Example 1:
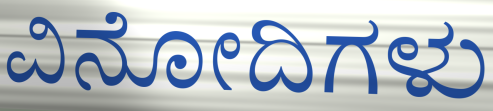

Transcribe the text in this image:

ವಿನೋದಿಗಳು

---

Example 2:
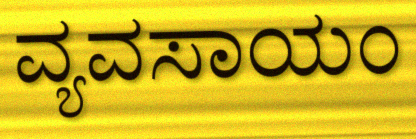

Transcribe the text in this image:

ವ್ಯವಸಾಯಂ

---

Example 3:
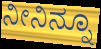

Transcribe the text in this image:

ನೀನಿನ್ನೂ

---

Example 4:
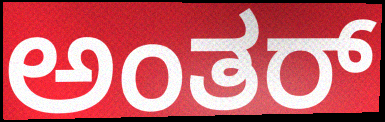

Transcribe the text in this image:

ಅಂತರ್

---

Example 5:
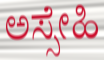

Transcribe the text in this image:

ಅಸ್ಸೇಹಿ